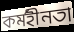
কর্মহীনতা